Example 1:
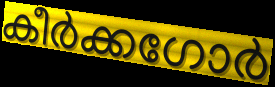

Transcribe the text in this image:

കീർക്കഗോർ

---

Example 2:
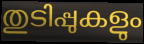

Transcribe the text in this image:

തുടിപ്പുകളും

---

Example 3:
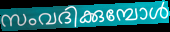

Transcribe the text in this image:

സംവദിക്കുമ്പോൾ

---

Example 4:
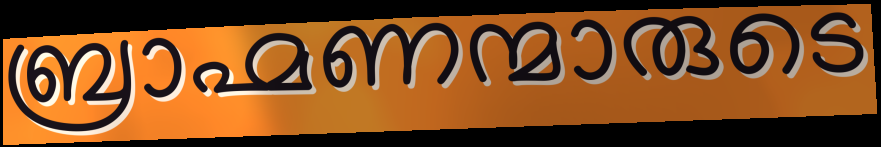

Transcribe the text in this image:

ബ്രാഹ്മണന്മാരുടെ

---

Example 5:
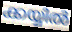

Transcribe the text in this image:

ക്കയ്യിൽ